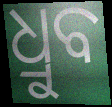
ଧ୍ରୁବ